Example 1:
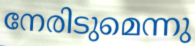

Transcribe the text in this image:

നേരിടുമെന്നു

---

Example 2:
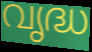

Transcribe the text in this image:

വൃദ്ധ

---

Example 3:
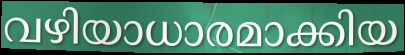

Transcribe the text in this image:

വഴിയാധാരമാക്കിയ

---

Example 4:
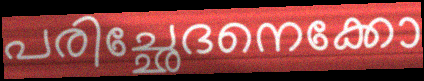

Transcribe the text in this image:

പരിച്ഛേദനെക്കോ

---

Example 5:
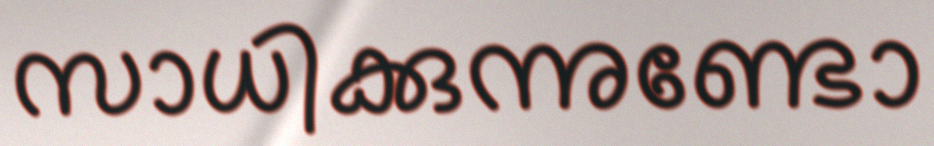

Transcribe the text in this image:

സാധിക്കുന്നുണ്ടോ